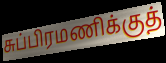
சுப்பிரமணிக்குத்